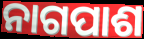
ନାଗପାଶ